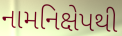
નામનિક્ષેપથી